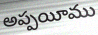
అప్పయీము